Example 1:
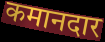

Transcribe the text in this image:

कमानदार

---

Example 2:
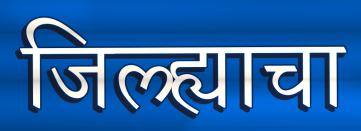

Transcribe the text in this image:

जिल्ह्याचा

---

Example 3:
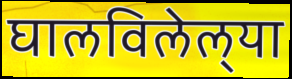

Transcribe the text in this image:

घालविलेल्या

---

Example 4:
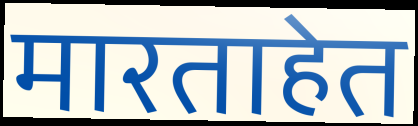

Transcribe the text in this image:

मारताहेत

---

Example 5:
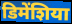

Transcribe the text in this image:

डिमेंशिया